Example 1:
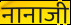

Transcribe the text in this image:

नानाजी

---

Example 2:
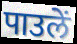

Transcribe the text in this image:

पाउलें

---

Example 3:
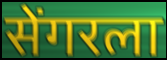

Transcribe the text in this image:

सेंगरला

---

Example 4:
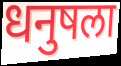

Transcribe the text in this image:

धनुषला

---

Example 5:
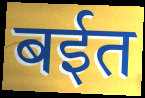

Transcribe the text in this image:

बईत